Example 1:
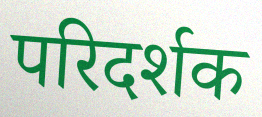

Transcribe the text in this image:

परिदर्शक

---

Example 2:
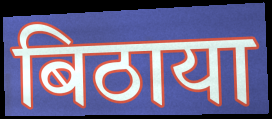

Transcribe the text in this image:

बिठाया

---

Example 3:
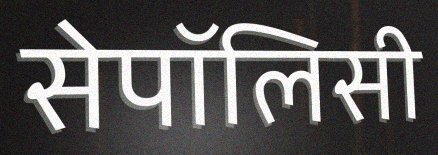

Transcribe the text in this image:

सेपॉलिसी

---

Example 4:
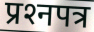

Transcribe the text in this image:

प्रश्नपत्र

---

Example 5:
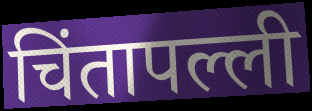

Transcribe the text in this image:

चिंतापल्ली